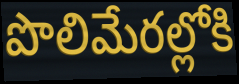
పొలిమేరల్లోకి